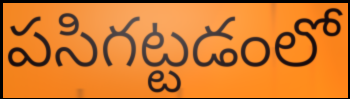
పసిగట్టడంలో